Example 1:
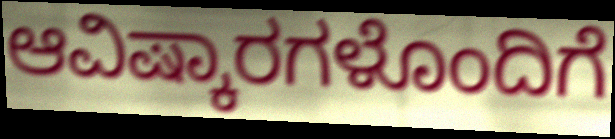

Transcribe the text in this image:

ಆವಿಷ್ಕಾರಗಳೊಂದಿಗೆ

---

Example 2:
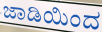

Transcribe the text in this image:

ಜಾಡಿಯಿಂದ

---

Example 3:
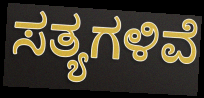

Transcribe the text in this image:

ಸತ್ಯಗಳಿವೆ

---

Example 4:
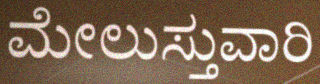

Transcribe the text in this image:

ಮೇಲುಸ್ತುವಾರಿ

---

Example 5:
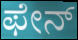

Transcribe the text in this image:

ಫೇನ್